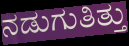
ನಡುಗುತಿತ್ತು